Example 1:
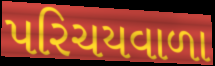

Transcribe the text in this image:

પરિચયવાળા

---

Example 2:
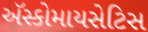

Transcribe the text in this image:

ઍસ્કોમાયસેટિસ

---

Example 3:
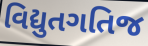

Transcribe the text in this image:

વિદ્યુતગતિજ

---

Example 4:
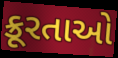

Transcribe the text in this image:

ક્રૂરતાઓ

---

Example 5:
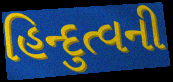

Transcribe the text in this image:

હિન્દુત્વની